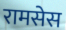
रामसेस